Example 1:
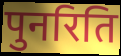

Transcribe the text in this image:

पुनरिति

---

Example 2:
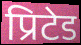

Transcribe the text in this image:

प्रिटेड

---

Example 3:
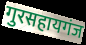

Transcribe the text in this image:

गुरसहायगंज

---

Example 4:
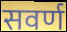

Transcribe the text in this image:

सवर्ण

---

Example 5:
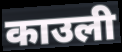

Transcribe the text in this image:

काउली